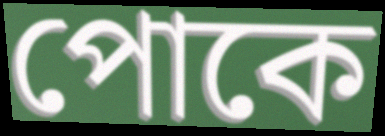
পোকে